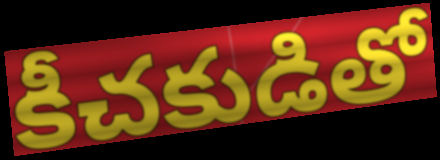
కీచకుడితో